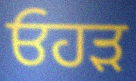
ਓਹੜ